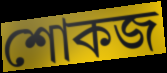
শোকজ